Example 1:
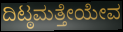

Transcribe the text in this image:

ದಿಟ್ಠಮತ್ತೇಯೇವ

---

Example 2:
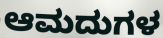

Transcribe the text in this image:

ಆಮದುಗಳ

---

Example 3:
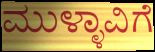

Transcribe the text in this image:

ಮುಳ್ಳಾವಿಗೆ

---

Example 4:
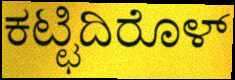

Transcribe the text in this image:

ಕಟ್ಟಿದಿರೊಳ್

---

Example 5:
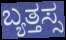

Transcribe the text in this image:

ಬ್ಯತ್ತಸ್ಸ